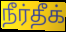
நீர்தீக்